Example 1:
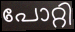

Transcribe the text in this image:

പോറ്റി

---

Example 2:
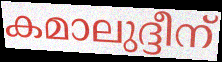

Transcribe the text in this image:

കമാലുദ്ദീന്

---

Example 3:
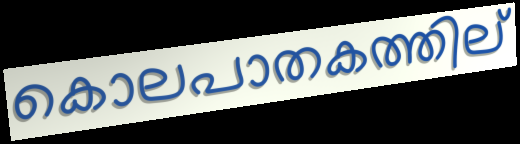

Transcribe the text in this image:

കൊലപാതകത്തില്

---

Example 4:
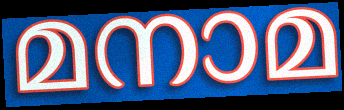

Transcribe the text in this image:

മനാമ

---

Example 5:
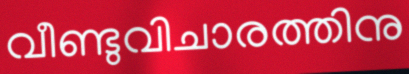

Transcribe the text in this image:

വീണ്ടുവിചാരത്തിനു